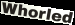
Whorled